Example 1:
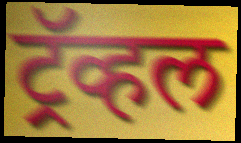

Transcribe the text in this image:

ट्रॅव्हल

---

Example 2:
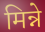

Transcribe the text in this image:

मिन्ने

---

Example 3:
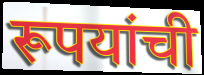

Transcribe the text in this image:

रूपयांची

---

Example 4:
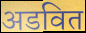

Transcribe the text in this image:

अडवित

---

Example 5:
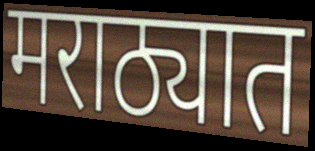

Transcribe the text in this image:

मराठ्यात